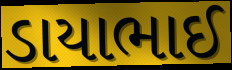
ડાયાભાઈ